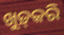
ଖୁଡ଼୍‍କରି